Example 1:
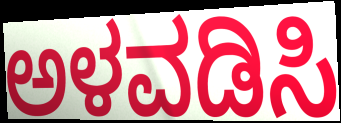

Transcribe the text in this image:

ಅಳವಡಿಸಿ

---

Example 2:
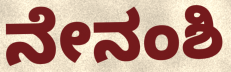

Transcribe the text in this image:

ನೇನಂಶಿ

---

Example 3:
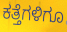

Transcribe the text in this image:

ಕತ್ತೆಗಳಿಗೂ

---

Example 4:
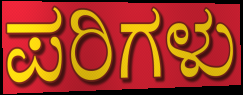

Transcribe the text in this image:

ಪರಿಗಳು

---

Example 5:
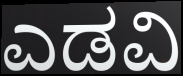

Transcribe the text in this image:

ಎಡವಿ